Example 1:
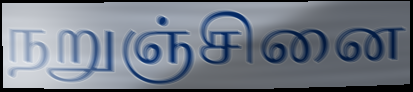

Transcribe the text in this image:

நறுஞ்சினை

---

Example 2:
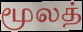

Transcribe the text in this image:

மூலத்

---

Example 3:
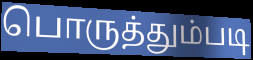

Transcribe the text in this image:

பொருத்தும்படி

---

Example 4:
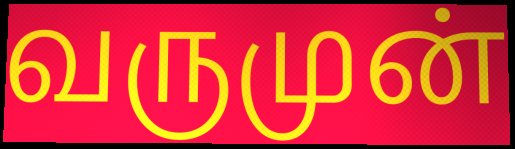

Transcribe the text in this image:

வருமுன்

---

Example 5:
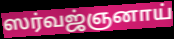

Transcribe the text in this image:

ஸர்வஜ்ஞனாய்